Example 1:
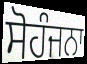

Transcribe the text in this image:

ਸੋਹੰਜਨਾ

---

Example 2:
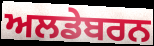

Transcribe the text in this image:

ਅਲਡੇਬਰਨ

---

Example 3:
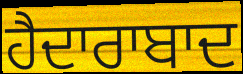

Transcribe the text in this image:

ਹੈਦਾਰਾਬਾਦ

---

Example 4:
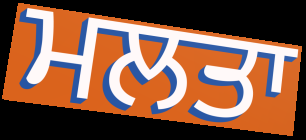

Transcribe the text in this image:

ਮਲਤਾ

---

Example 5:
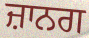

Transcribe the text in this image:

ਜ਼ਾਨਗ